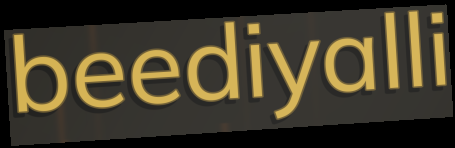
beediyalli